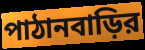
পাঠানবাড়ির